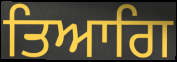
ਤਿਆਗਿ